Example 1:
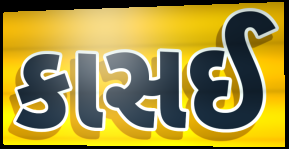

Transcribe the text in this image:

કાસઈ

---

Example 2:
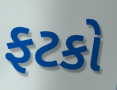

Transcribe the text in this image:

ફટકો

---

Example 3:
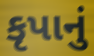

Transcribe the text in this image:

કૃપાનું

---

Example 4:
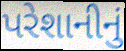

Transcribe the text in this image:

પરેશાનીનું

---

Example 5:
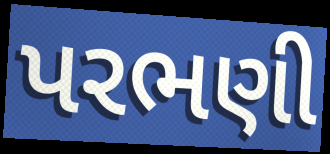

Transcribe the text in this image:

પરભણી